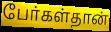
பேர்கள்தான்